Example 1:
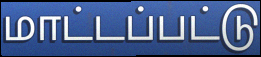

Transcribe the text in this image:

மாட்டப்பட்டு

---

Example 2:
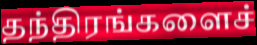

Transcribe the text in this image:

தந்திரங்களைச்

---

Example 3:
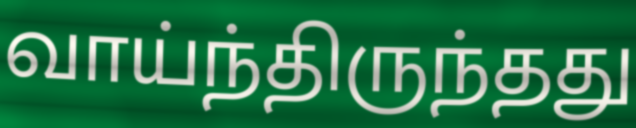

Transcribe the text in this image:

வாய்ந்திருந்தது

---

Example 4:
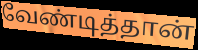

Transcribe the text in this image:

வேண்டித்தான்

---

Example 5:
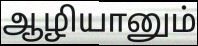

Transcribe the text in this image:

ஆழியானும்